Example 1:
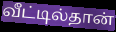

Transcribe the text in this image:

வீட்டில்தான்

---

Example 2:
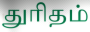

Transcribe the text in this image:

துரிதம்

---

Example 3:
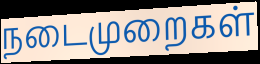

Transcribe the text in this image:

நடைமுறைகள்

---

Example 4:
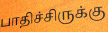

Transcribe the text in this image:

பாதிச்சிருக்கு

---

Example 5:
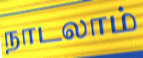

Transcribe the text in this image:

நாடலாம்